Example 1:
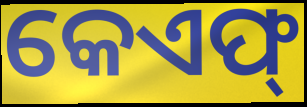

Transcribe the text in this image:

କେଏଫ୍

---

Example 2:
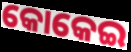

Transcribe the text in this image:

କୋକେଇ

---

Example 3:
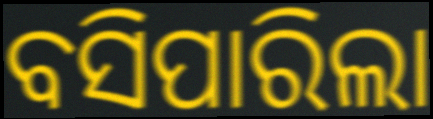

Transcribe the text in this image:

ବସିପାରିଲା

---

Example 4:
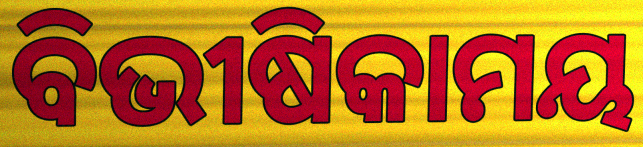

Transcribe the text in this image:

ବିଭୀଷିକାମୟ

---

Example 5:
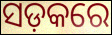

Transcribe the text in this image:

ସଡ଼କରେ